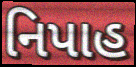
નિપાહ